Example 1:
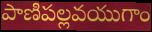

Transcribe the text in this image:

పాణిపల్లవయుగాం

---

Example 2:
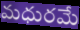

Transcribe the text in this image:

మధురమే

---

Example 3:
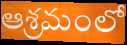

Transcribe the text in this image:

ఆశ్రమంలో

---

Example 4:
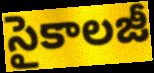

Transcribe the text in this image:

సైకాలజీ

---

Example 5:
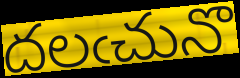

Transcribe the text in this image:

దలఁచునొ